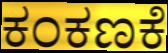
ಕಂಕಣಕೆ